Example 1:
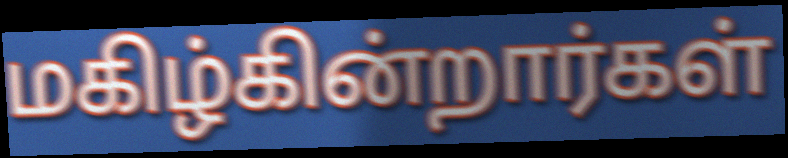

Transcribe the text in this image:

மகிழ்கின்றார்கள்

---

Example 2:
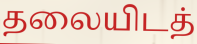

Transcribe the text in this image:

தலையிடத்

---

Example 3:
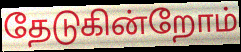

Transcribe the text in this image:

தேடுகின்றோம்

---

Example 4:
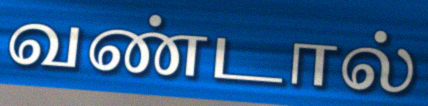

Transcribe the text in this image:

வண்டால்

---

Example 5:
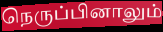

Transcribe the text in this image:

நெருப்பினாலும்